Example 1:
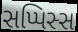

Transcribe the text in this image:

સપ્પિસ્સ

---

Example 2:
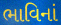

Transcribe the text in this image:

ભાવિનાં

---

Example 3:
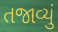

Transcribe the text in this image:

તજાવ્યું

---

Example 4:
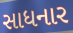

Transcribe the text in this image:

સાધનાર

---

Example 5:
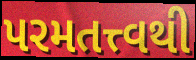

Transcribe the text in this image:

પરમતત્ત્વથી